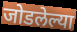
जोडलेल्या